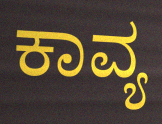
ಕಾವ್ಯ